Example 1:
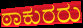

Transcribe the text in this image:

ಠಾಕುರರು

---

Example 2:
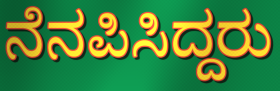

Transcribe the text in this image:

ನೆನಪಿಸಿದ್ದರು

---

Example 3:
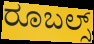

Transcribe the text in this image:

ರೂಬಲ್ಸ್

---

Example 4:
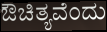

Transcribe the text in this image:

ಔಚಿತ್ಯವೆಂದು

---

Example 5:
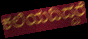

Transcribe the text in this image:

ಕಲಿಯದಿದ್ದರೆ